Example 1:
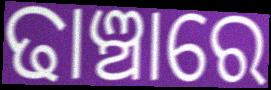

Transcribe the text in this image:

ଢାଞ୍ଚାରେ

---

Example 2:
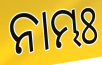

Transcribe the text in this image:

ନାମ୍ଭଃ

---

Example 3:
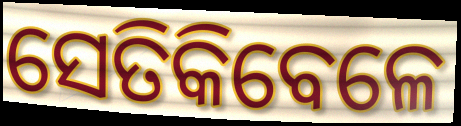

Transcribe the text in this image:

ସେତିକିବେଳେ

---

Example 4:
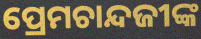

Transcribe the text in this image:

ପ୍ରେମଚାନ୍ଦଜୀଙ୍କ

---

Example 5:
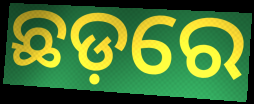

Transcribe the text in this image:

ଛଡ଼ରେ